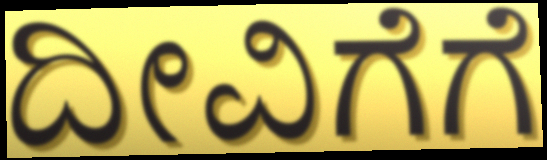
ದೀವಿಗೆಗೆ